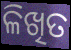
ଳିଖିତ